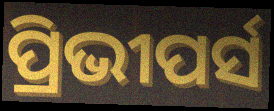
ପ୍ରିଭୀପର୍ସ